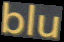
blu